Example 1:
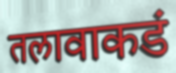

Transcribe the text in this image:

तलावाकडं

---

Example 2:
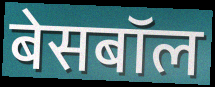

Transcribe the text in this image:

बेसबॉल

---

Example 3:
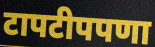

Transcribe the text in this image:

टापटीपपणा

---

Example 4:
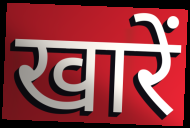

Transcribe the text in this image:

खारें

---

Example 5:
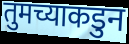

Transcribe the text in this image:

तुमच्याकडुन